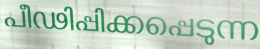
പീഢിപ്പിക്കപ്പെടുന്ന